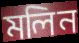
মলিন